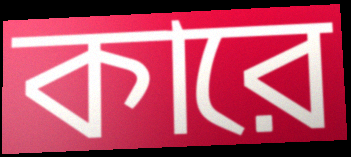
কারে